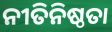
ନୀତିନିଷ୍ଠତା